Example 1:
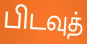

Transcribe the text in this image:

பிடவுத்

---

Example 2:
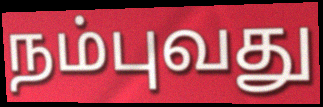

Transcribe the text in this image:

நம்புவது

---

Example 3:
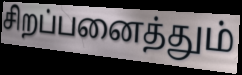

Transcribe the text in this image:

சிறப்பனைத்தும்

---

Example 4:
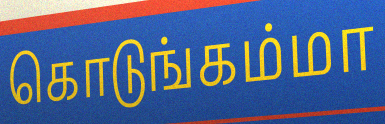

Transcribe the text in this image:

கொடுங்கம்மா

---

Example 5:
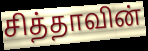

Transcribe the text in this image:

சித்தாவின்